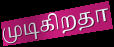
முடிகிறதா